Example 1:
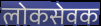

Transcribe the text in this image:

लोकसेवक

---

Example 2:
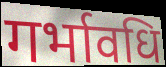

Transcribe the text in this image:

गर्भावधि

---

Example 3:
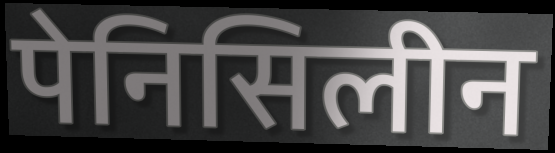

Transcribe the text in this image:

पेनिसिलीन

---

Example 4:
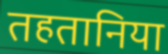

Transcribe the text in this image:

तहतानिया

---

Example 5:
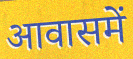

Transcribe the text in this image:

आवासमें